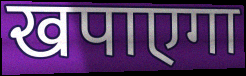
खपाएगा